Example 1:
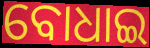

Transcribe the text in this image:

ବୋଧାଇ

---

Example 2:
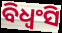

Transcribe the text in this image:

ବିଧ୍ୱଂସି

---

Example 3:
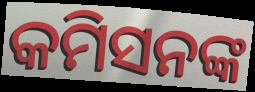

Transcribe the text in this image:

କମିସନଙ୍କ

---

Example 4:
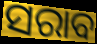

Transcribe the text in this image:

ସରାବ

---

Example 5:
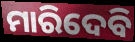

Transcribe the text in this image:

ମାରିଦେବି